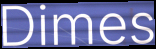
Dimes